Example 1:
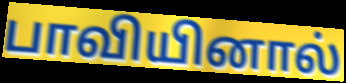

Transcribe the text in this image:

பாவியினால்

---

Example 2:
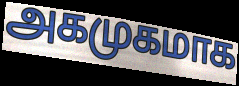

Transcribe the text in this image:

அகமுகமாக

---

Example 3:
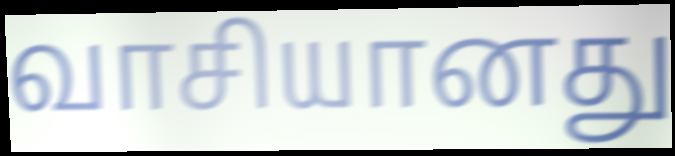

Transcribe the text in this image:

வாசியானது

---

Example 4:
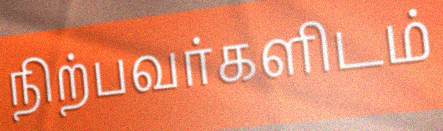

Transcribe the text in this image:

நிற்பவர்களிடம்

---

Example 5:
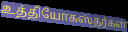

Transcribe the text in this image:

உத்தியோகஸ்தர்கள்